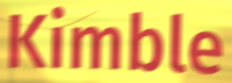
Kimble